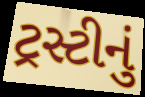
ટ્રસ્ટીનું